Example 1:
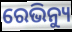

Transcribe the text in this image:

ରେଭିନ୍ୟୁ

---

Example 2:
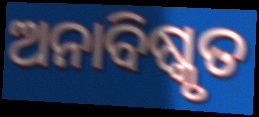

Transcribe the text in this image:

ଅନାବିଷ୍କୃତ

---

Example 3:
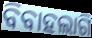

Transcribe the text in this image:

ବିବାହଲାଗି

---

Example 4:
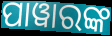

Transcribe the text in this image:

ପାୱାରଙ୍କ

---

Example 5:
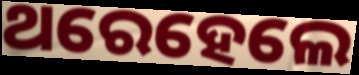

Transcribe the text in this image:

ଥରେହେଲେ